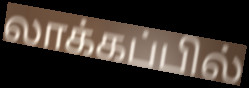
லாக்கப்பில்